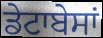
ਡੇਟਾਬੇਸਾਂ